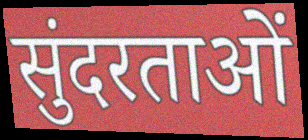
सुंदरताओं